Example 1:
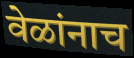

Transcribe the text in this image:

वेळांनाच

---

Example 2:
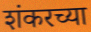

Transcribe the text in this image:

शंकरच्या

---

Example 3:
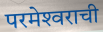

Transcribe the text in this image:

परमेश्‍वराची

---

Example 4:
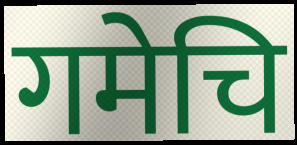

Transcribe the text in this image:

गमेचि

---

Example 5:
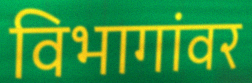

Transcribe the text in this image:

विभागांवर